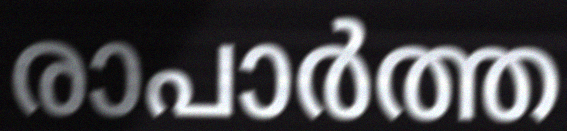
രാപാർത്ത